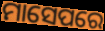
ମାସେପରେ